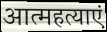
आत्महत्याएं